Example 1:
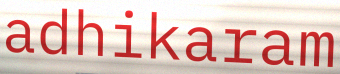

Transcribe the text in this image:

adhikaram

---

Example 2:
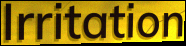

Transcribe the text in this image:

Irritation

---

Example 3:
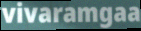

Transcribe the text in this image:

vivaramgaa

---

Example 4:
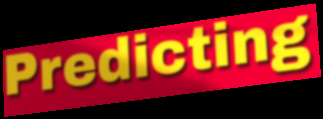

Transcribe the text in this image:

Predicting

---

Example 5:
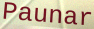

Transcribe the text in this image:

Paunar